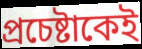
প্রচেষ্টাকেই